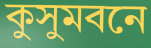
কুসুমবনে